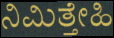
ನಿಮಿತ್ತೇಹಿ